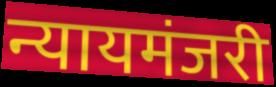
न्यायमंजरी